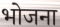
भोजना